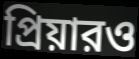
প্রিয়ারও